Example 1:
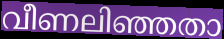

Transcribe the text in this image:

വീണലിഞ്ഞതാ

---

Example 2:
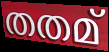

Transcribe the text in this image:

തതമ്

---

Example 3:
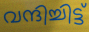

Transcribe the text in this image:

വന്ദിച്ചിട്ട്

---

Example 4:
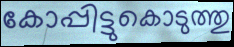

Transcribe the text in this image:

കോപ്പിട്ടുകൊടുത്തു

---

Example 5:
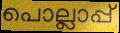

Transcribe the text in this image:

പൊല്ലാപ്പ്